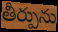
తీర్పును